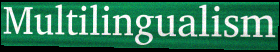
Multilingualism